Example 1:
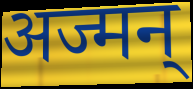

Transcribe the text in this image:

अज्मन्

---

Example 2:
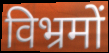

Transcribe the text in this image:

विभ्रमों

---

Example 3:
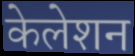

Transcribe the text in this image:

केलेशन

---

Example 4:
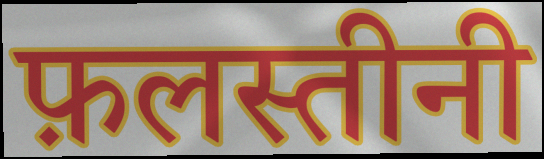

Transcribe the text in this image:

फ़लस्तीनी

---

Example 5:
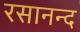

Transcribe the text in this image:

रसानन्द